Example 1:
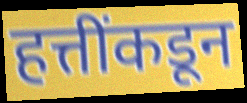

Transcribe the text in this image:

हत्तींकडून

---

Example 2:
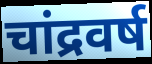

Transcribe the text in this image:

चांद्रवर्ष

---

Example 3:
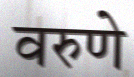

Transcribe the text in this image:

वरुणे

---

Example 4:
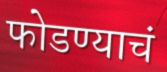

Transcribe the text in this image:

फोडण्याचं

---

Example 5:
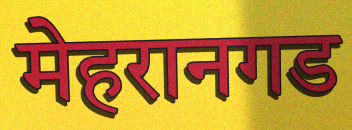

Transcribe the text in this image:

मेहरानगड